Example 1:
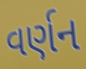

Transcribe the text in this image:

વર્ણન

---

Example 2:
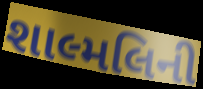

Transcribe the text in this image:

શાલ્મલિની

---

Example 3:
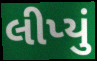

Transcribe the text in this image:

લીપ્યું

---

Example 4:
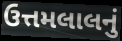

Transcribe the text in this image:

ઉત્તમલાલનું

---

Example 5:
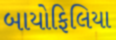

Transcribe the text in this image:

બાયોફિલિયા